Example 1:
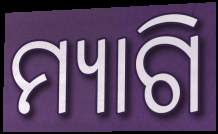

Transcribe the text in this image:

ମ୍ୟାଗି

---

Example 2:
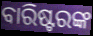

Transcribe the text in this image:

ବାରିଷ୍ଟରଙ୍କ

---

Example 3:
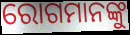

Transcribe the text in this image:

ରୋଗମାନଙ୍କୁ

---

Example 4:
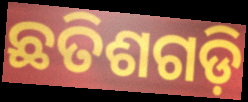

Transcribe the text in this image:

ଛତିଶଗଡ଼ି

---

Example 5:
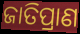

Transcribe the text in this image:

ଜାତିପ୍ରାଣ